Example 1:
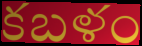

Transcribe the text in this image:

కబళం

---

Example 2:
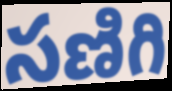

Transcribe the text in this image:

సణిగి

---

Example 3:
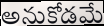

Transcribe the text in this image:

అనుకోడమే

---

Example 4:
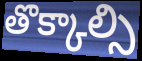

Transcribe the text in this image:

తొక్కాల్సి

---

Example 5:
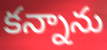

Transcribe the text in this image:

కన్నాను